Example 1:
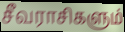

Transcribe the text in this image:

சீவராசிகளும்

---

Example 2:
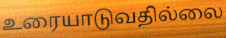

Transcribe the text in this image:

உரையாடுவதில்லை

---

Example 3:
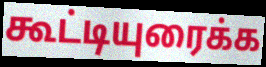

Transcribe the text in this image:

கூட்டியுரைக்க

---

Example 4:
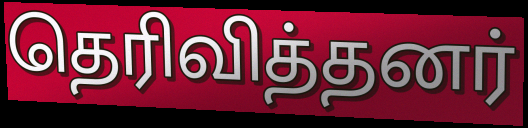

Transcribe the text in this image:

தெரிவித்தனர்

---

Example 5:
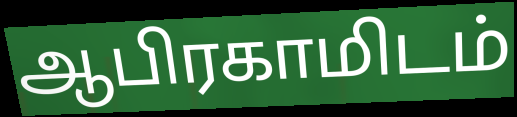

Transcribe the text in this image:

ஆபிரகாமிடம்